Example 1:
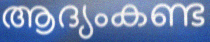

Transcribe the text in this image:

ആദ്യംകണ്ട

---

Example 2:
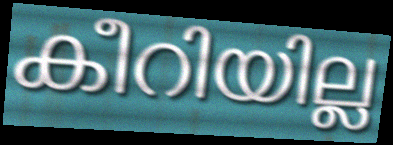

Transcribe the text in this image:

കീറിയില്ല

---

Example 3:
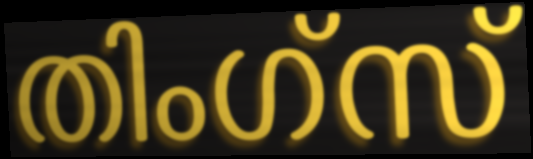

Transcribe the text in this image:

തിംഗ്സ്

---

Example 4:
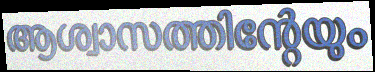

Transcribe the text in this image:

ആശ്വാസത്തിന്റേയും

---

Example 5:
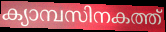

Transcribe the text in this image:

ക്യാമ്പസിനകത്ത്